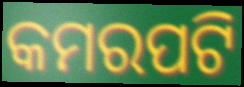
କମରପଟି